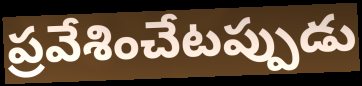
ప్రవేశించేటప్పుడు